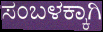
ಸಂಬಳಕ್ಕಾಗಿ